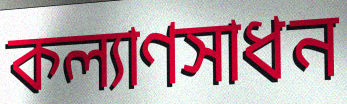
কল্যাণসাধন